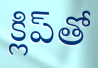
క్లిప్‌తో